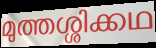
മുത്തശ്ശിക്കഥ